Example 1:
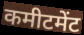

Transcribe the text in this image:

कमीटमेंट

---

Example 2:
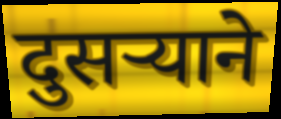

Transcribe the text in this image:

दुसऱ्याने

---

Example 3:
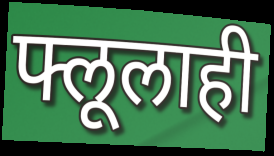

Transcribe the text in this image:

फ्लूलाही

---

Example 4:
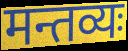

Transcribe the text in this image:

मन्तव्यः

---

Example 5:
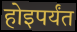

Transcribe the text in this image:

होइपर्यंत